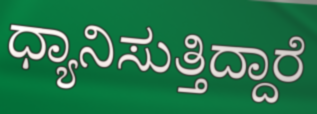
ಧ್ಯಾನಿಸುತ್ತಿದ್ದಾರೆ